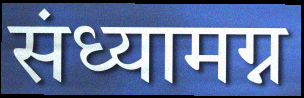
संध्यामग्न